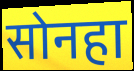
सोनहा